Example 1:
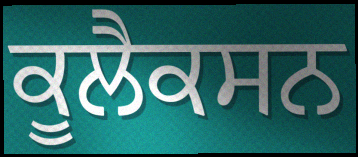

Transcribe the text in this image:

ਕੂਲੈਕਸਨ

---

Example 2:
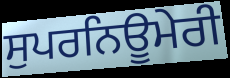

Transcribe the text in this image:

ਸੁਪਰਨਿਊਮੇਰੀ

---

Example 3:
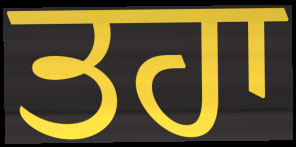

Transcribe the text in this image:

ਤਹਾ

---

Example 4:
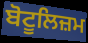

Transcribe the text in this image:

ਬੋਟੂਲਿਜ਼ਮ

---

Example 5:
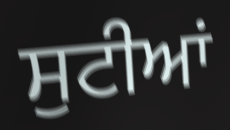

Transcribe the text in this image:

ਸੁਟੀਆਂ